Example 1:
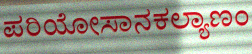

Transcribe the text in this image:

ಪರಿಯೋಸಾನಕಲ್ಯಾಣಂ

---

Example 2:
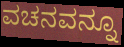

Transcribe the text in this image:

ವಚನವನ್ನೂ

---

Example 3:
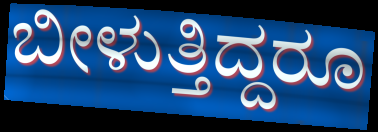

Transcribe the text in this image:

ಬೀಳುತ್ತಿದ್ದರೂ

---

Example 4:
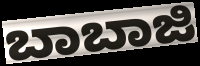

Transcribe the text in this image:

ಬಾಬಾಜಿ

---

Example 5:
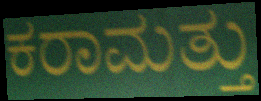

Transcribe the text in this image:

ಕರಾಮತ್ತು